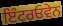
ਇੰਟਰਓਵੇਨ